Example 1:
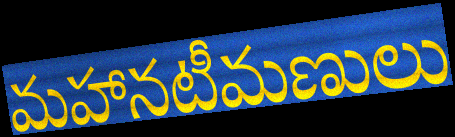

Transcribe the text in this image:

మహానటీమణులు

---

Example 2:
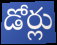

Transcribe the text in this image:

డోర్లు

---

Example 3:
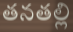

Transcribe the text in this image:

తనతల్లి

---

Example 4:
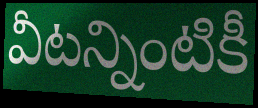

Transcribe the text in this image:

వీటన్నింటికీ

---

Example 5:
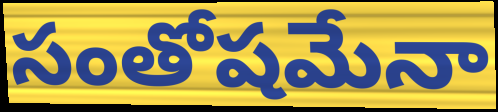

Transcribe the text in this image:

సంతోషమేనా